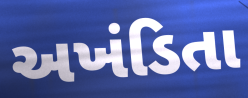
અખંડિતા